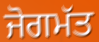
ਜੋਗਮੱਤ